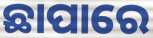
ଛାପାରେ